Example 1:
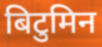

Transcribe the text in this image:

बिटुमिन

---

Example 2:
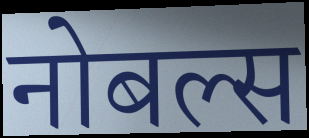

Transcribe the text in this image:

नोबल्स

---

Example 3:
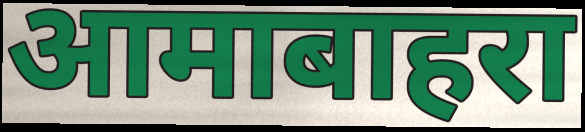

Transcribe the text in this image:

आमाबाहरा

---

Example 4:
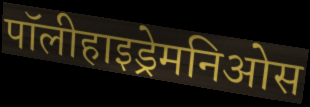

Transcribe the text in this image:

पॉलीहाइड्रेमनिओस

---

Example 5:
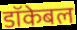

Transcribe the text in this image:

डॉकेबल